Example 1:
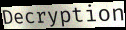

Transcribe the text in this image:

Decryption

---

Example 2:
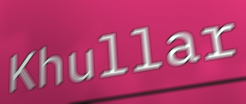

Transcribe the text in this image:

Khullar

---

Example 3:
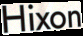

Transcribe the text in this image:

Hixon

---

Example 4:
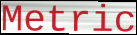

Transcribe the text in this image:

Metric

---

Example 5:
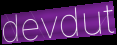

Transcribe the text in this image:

devdut